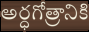
అర్ధగోత్రానికి